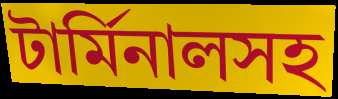
টার্মিনালসহ